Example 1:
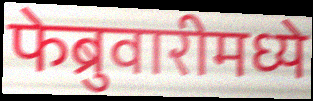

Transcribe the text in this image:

फेब्रुवारीमध्ये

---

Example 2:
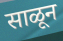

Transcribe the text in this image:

साळून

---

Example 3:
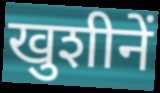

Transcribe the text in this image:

खुशीनें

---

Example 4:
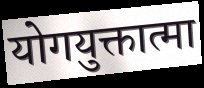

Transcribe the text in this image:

योगयुक्तात्मा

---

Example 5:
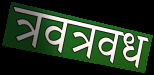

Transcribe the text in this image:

त्रवत्रवध